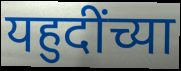
यहुदींच्या